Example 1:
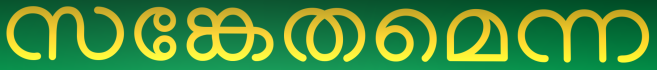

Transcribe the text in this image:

സങ്കേതമെന്ന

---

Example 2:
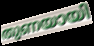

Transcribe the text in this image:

തുണയായി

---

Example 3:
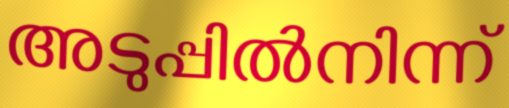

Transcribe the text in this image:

അടുപ്പിൽനിന്ന്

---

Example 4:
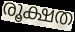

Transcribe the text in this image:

രൂക്ഷത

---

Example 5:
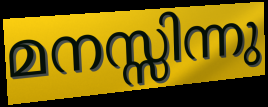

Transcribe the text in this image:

മനസ്സിന്നു